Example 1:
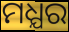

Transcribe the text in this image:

ମଧ୍ଯର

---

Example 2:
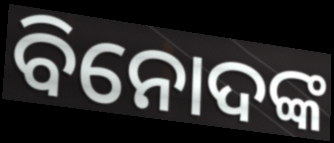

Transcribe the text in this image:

ବିନୋଦଙ୍କ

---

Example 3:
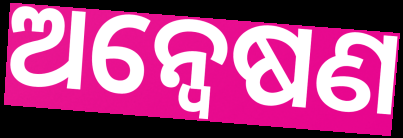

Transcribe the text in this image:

ଅନ୍ବେଷଣ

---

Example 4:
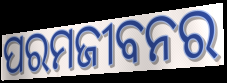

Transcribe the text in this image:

ପରମଜୀବନର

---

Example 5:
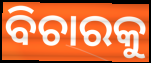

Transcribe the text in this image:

ବିଚାରକୁ